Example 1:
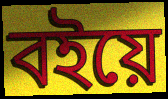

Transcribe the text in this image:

বইয়ে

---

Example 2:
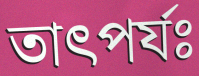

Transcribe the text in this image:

তাৎপর্যঃ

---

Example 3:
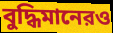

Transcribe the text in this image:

বুদ্ধিমানেরও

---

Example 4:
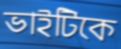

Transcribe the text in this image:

ভাইটিকে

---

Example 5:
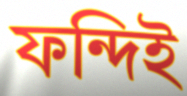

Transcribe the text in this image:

ফন্দিই